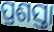
ପ୍ରଶସ୍ତା